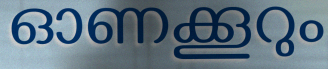
ഓണക്കൂറും